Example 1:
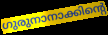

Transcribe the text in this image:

ഗുരുനാനാക്കിന്റെ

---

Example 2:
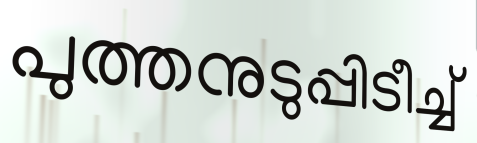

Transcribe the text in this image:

പുത്തനുടുപ്പിടീച്ച്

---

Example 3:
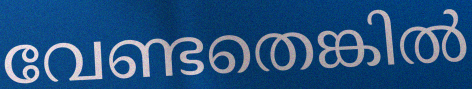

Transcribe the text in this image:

വേണ്ടതെങ്കിൽ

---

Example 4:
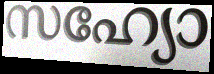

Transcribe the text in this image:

സഹ്യോ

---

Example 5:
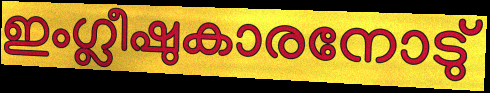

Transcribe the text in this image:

ഇംഗ്ലീഷുകാരനോടു്